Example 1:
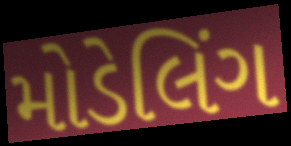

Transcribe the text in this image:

મોડેલિંગ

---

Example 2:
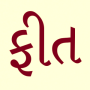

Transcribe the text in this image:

ફીત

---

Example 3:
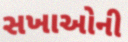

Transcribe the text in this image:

સખાઓની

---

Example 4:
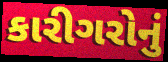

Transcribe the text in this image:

કારીગરોનું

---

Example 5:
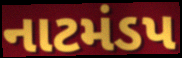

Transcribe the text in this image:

નાટમંડપ